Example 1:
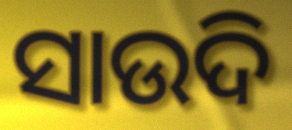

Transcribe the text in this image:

ସାଉଦି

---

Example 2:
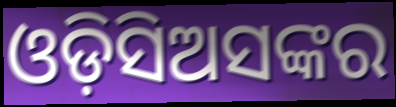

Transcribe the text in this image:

ଓଡ଼ିସିଅସଙ୍କର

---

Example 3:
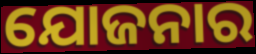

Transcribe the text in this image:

ଯୋଜନାର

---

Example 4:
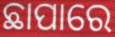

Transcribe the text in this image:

ଛାପାରେ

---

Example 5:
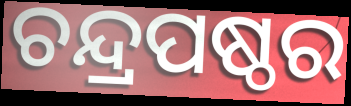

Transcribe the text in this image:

ଚନ୍ଦ୍ରପଷ୍ଠର